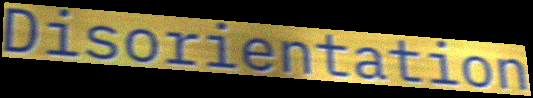
Disorientation